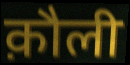
क़ौली